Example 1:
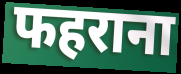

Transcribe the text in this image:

फहराना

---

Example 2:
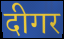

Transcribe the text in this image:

दीगर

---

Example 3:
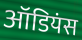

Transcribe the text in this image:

ऑडियंस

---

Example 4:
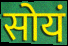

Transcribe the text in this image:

सोयं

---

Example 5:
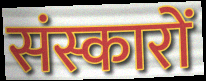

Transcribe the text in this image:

संस्कारों